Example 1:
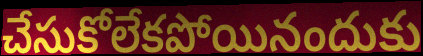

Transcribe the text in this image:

చేసుకోలేకపోయినందుకు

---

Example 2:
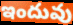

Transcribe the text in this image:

ఇందువు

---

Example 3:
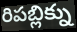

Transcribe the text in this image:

రిపబ్లిక్ను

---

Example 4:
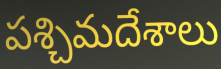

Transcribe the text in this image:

పశ్చిమదేశాలు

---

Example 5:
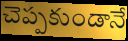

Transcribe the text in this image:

చెప్పకుండానే